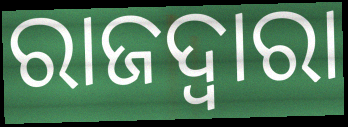
ରାଜଦ୍ୱାରା